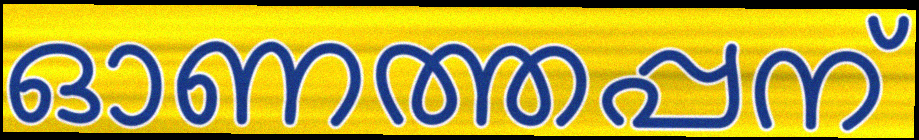
ഓണത്തപ്പന്